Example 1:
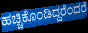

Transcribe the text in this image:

ಹಚ್ಚಿಕೊಂಡಿದ್ದರೆಂದರೆ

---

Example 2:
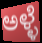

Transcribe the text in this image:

ಅಳ್ಳೆ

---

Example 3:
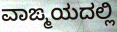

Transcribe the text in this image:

ವಾಙ್ಮಯದಲ್ಲಿ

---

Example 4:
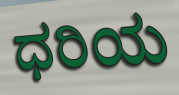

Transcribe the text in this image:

ಧರಿಯ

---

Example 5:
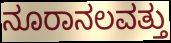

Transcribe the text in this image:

ನೂರಾನಲವತ್ತು